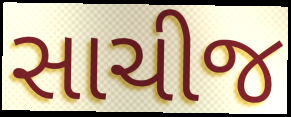
સાચીજ